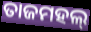
ତାଜମହଲ୍